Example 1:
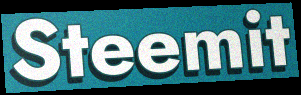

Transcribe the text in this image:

Steemit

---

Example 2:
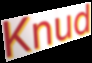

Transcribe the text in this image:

Knud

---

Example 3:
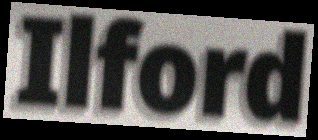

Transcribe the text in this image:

Ilford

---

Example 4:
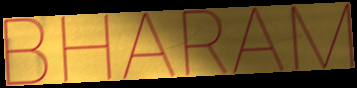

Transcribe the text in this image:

BHARAM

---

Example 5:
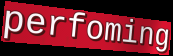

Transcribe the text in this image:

perfoming